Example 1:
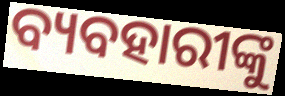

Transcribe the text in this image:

ବ୍ୟବହାରୀଙ୍କୁ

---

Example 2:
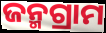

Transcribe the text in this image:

ଜନ୍ମଗ୍ରାମ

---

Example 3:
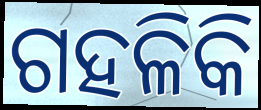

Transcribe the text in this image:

ଗହଳିକି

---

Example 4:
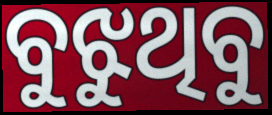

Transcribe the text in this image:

ବୁଝୁଥିବୁ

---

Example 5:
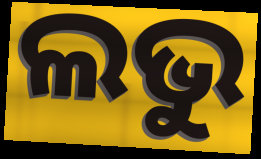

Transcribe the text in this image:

ଲଭୁ